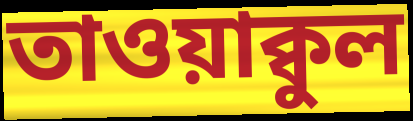
তাওয়াক্বুল